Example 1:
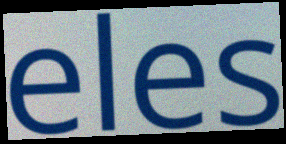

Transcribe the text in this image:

eles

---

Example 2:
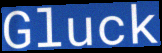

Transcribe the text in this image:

Gluck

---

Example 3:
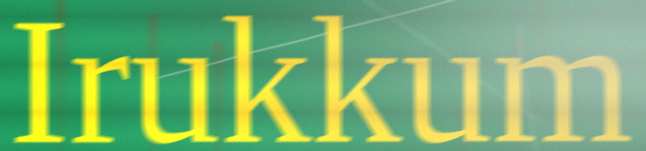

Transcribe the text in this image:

Irukkum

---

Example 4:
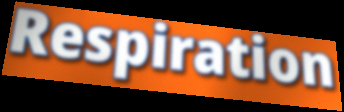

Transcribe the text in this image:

Respiration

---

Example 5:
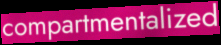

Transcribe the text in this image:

compartmentalized